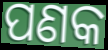
ପଣକ